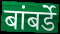
बांबर्डे